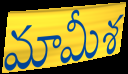
మామీశ